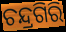
ଚନ୍ଦ୍ରଗିରି